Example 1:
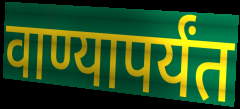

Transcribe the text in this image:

वाण्यापर्यंत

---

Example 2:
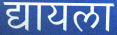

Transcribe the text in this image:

द्यायला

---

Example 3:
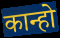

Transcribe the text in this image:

कान्हो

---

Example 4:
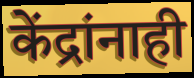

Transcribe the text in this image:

केंद्रांनाही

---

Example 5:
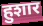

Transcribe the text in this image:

हुशार